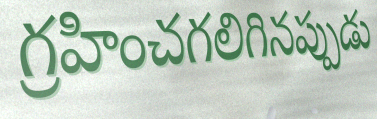
గ్రహించగలిగినప్పుడు